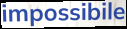
impossibile